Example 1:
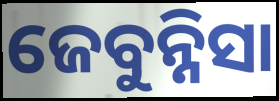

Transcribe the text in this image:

ଜେବୁନ୍ନିସା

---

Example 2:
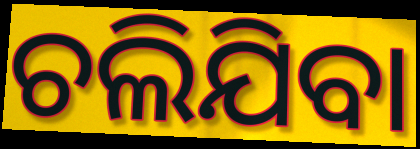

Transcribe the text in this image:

ଚଲିଯିବା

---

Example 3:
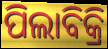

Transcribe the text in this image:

ପିଲାବିକ୍ରି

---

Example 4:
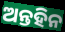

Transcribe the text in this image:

ଅନ୍ତହିନ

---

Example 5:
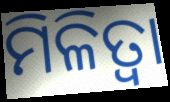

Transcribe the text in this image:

ମିଳିତ୍ଵା